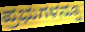
ಪ್ರಭುಗಳನ್ನೂ